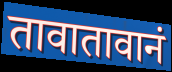
तावातावानं